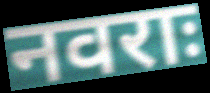
नवराः